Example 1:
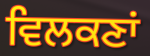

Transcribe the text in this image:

ਵਿਲਕਣਾਂ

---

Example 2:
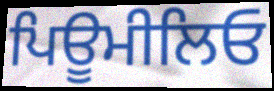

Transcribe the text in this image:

ਪਿਊਮੀਲਿਓ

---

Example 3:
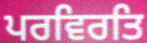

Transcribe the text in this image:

ਪਰਵਿਰਤਿ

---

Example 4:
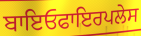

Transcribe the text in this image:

ਬਾਇਓਫਾਇਰਪਲੇਸ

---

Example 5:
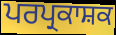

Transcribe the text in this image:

ਪਰਪ੍ਰਕਾਸ਼ਕ